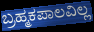
ಬ್ರಹ್ಮಕಪಾಲವಿಲ್ಲ